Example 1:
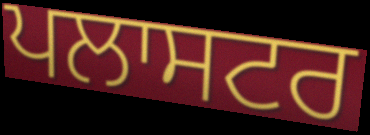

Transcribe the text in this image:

ਪਲਾਸਟਰ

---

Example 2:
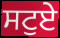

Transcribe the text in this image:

ਸਟੁਏ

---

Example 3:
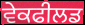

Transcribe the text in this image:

ਵੇਕਫੀਲਡ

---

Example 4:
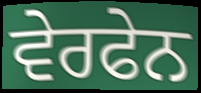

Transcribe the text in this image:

ਵੇਰਫੇਨ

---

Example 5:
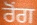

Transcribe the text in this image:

ਰੋਂਗ